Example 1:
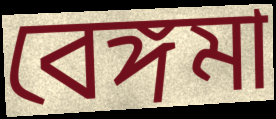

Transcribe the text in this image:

বেঙ্গমা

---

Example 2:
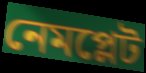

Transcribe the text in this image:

নেমপ্লেট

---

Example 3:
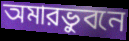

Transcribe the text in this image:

অমারভুবনে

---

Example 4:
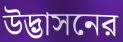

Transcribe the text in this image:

উদ্ভাসনের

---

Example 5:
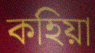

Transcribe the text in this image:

কহিয়া